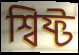
শ্বিফ্ট